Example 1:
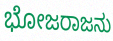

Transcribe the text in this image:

ಭೋಜರಾಜನು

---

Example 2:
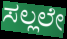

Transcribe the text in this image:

ಸಲ್ಲಲೇ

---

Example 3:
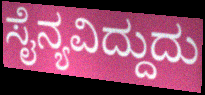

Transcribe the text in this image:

ಸೈನ್ಯವಿದ್ದುದು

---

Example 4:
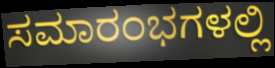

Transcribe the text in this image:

ಸಮಾರಂಭಗಳಲ್ಲಿ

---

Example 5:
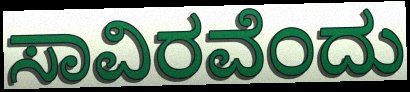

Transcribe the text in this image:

ಸಾವಿರವೆಂದು